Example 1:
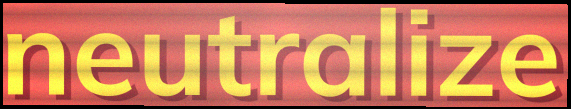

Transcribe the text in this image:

neutralize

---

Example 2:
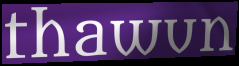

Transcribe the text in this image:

thawun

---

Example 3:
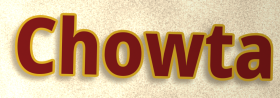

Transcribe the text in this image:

Chowta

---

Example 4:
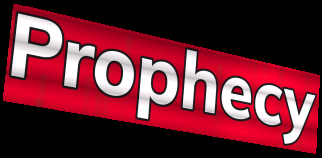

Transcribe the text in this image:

Prophecy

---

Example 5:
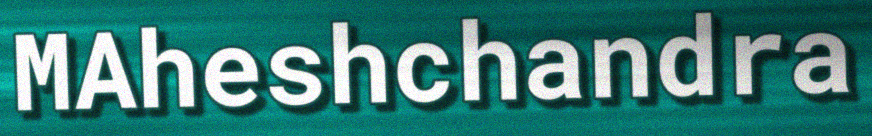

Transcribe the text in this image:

MAheshchandra